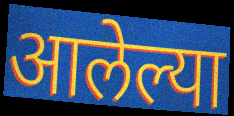
आलेल्या